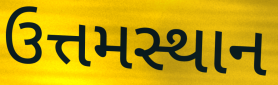
ઉત્તમસ્થાન